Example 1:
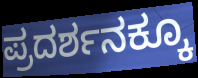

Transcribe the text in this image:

ಪ್ರದರ್ಶನಕ್ಕೂ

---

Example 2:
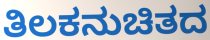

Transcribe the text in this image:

ತಿಲಕನುಚಿತದ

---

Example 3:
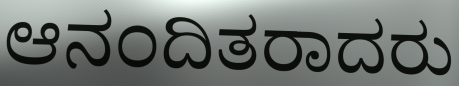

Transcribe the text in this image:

ಆನಂದಿತರಾದರು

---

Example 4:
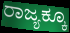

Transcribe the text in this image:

ರಾಜ್ಯಕ್ಕೂ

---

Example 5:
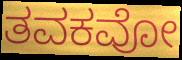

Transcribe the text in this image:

ತವಕವೋ